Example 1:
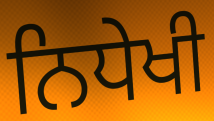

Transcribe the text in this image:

ਨਿਧੇਖੀ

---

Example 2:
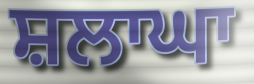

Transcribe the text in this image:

ਸ਼ਲਾਘਾ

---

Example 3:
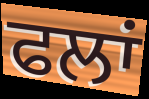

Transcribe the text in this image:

ਫਲਾਂ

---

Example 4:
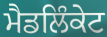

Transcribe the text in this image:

ਮੈਡਲਿੰਕੇਟ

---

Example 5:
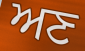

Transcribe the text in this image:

ਅਣ